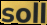
soll